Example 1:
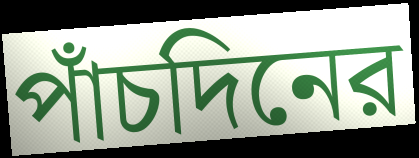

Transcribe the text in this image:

পাঁচদিনের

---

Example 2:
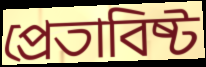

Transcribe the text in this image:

প্রেতাবিষ্ট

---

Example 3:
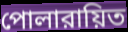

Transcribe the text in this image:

পোলারায়িত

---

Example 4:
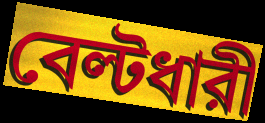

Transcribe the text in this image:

বেল্টধারী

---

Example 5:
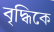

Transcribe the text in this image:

বৃদ্ধিকে